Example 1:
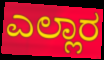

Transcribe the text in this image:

ಎಲ್ಲಾರ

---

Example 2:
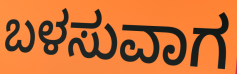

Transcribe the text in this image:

ಬಳಸುವಾಗ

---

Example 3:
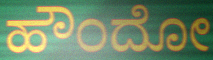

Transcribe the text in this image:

ಹೌಂದೋ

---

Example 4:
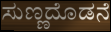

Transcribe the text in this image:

ಸುಣ್ಣದೊಡನೆ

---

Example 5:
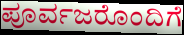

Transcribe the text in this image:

ಪೂರ್ವಜರೊಂದಿಗೆ